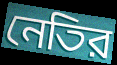
নেতির